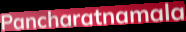
Pancharatnamala